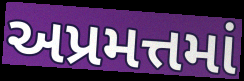
અપ્રમત્તમાં